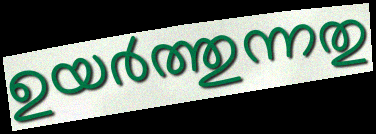
ഉയർത്തുന്നതു